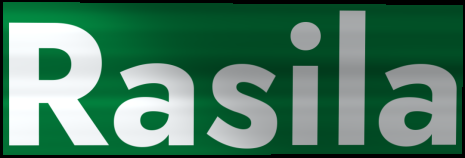
Rasila